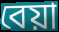
বেয়া